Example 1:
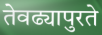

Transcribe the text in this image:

तेवढ्यापुरते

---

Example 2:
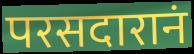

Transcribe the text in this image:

परसदारानं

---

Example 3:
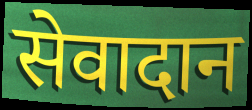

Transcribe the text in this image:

सेवादान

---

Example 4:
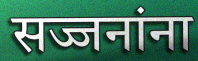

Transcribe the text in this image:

सज्जनांना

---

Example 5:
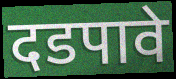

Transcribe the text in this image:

दडपावे